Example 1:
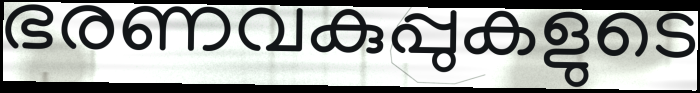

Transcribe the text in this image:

ഭരണവകുപ്പുകളുടെ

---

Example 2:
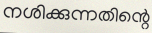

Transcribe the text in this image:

നശിക്കുന്നതിന്റെ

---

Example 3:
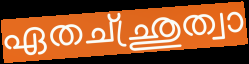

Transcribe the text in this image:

ഏതച്ഛ്രുത്വാ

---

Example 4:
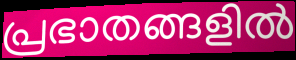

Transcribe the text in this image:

പ്രഭാതങ്ങളിൽ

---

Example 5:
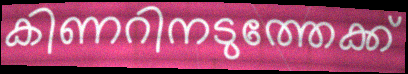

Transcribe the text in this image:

കിണറിനടുത്തേക്ക്